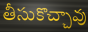
తీసుకొచ్చావు